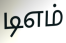
டிஎம்